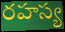
రహస్య